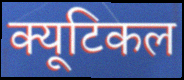
क्यूटिकल